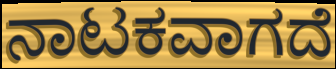
ನಾಟಕವಾಗದೆ